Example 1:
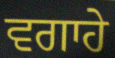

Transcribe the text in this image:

ਵਗਾਹੇ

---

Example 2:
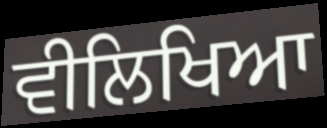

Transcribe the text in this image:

ਵੀਲਿਖਿਆ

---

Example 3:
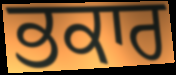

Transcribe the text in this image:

ਭਕਾਰ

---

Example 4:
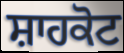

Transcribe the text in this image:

ਸ਼ਾਹਕੋਟ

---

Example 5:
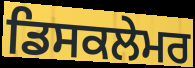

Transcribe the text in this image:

ਡਿਸਕਲੇਮਰ